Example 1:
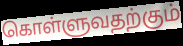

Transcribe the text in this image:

கொள்ளுவதற்கும்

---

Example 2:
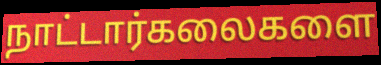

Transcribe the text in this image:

நாட்டார்கலைகளை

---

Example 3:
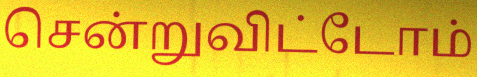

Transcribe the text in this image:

சென்றுவிட்டோம்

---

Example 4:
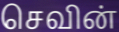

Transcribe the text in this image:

செவின்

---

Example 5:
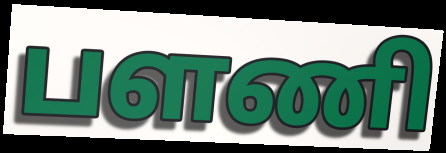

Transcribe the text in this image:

பளணி